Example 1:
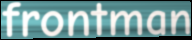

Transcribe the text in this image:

frontman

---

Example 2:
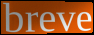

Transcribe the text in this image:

breve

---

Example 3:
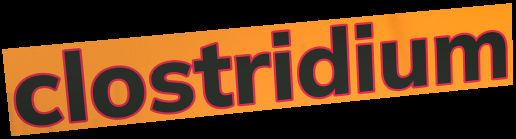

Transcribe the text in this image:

clostridium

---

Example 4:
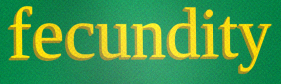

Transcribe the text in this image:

fecundity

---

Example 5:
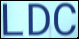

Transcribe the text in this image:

LDC